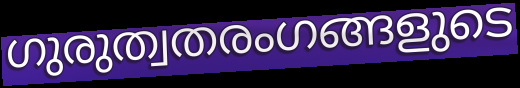
ഗുരുത്വതരംഗങ്ങളുടെ